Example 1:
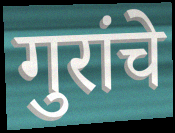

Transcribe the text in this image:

गुरांचे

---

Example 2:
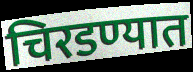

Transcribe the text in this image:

चिरडण्यात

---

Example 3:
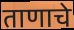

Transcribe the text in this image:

ताणाचे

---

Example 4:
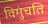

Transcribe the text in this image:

विमुंचति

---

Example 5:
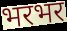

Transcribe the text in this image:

भरभर